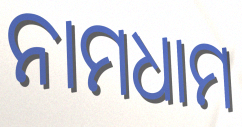
ନାମଧାମ